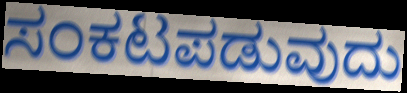
ಸಂಕಟಪಡುವುದು